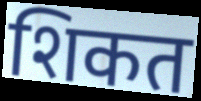
शिकत